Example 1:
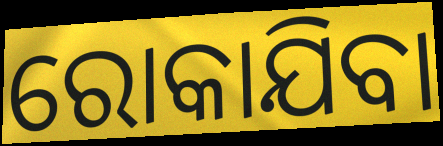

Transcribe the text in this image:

ରୋକାଯିବା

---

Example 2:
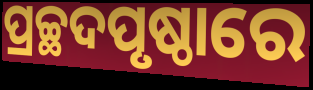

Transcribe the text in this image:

ପ୍ରଚ୍ଛଦପୃଷ୍ଠାରେ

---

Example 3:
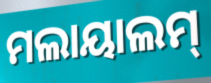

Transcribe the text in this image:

ମଲାୟାଲମ୍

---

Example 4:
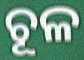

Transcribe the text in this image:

ଚୂଳ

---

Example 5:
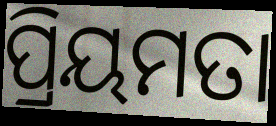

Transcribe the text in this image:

ପ୍ରିୟମତା